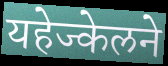
यहेज्केलने